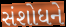
સંશોધને